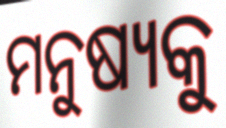
ମନୁଷ୍ୟକୁ